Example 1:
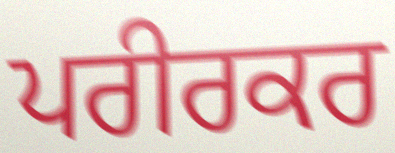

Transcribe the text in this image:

ਪਰੀਰਕਰ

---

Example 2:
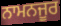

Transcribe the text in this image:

ਨਾਮਨਜੂਰ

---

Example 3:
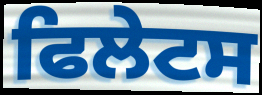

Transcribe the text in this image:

ਫਿਲੇਟਸ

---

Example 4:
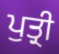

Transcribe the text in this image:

ਪੁਤ੍ਰੀ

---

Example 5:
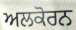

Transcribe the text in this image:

ਅਲਕੋਰਨ